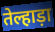
तेल्हाड़ा